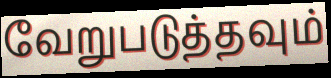
வேறுபடுத்தவும்